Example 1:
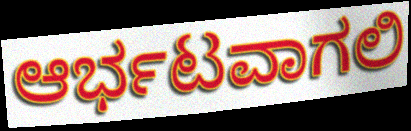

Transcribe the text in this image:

ಆರ್ಭಟವಾಗಲಿ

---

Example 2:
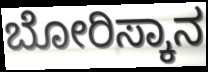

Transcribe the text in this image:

ಬೋರಿಸ್ಕಾನ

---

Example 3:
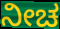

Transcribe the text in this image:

ನೀಚ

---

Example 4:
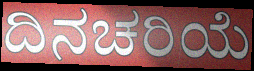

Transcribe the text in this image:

ದಿನಚರಿಯೆ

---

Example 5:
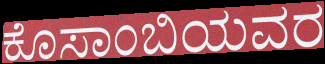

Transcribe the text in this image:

ಕೊಸಾಂಬಿಯವರ